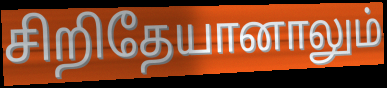
சிறிதேயானாலும்